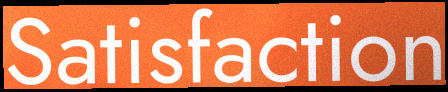
Satisfaction